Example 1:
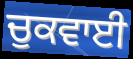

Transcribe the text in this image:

ਚੁਕਵਾਈ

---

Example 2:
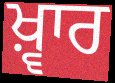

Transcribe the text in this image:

ਖ਼੍ਵਾਰ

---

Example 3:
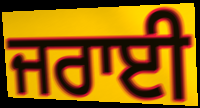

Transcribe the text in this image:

ਜਰਾਈ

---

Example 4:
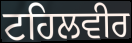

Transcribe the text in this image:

ਟਹਿਲਵੀਰ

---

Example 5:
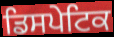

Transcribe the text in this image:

ਡਿਸਪੇਟਿਕ